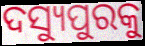
ଦସ୍ୟୁପୁରକୁ